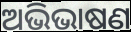
ଅଭିଭାଷଣ